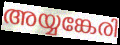
അയ്യങ്കേരി